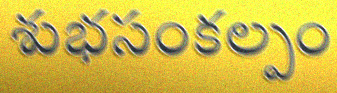
శుభసంకల్పం